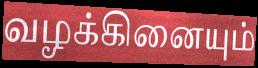
வழக்கினையும்